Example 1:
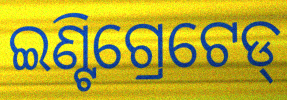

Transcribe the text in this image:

ଇଣ୍ଟିଗ୍ରେଟେଡ୍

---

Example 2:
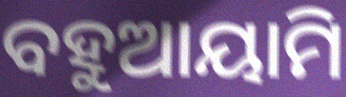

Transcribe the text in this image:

ବହୁଆୟାମି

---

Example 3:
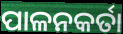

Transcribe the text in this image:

ପାଳନକର୍ତା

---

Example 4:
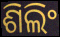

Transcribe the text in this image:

ଶିଲିଂ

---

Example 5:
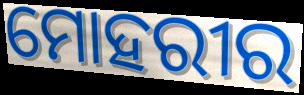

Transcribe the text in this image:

ମୋହରୀର